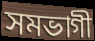
সমভাগী